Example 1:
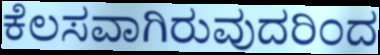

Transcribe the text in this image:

ಕೆಲಸವಾಗಿರುವುದರಿಂದ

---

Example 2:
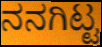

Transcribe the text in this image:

ನನಗಿಟ್ಟ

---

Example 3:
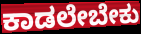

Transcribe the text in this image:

ಕಾಡಲೇಬೇಕು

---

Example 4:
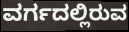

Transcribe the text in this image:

ವರ್ಗದಲ್ಲಿರುವ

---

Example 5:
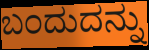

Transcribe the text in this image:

ಬಂದುದನ್ನು